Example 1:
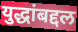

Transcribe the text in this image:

युद्धांबद्दल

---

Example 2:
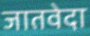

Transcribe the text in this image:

जातवेदा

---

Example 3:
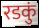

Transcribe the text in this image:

रडकुं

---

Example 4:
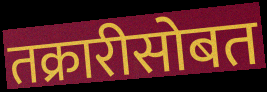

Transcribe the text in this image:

तक्रारीसोबत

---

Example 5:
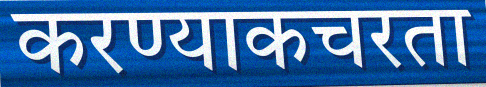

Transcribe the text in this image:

करण्याकचरता